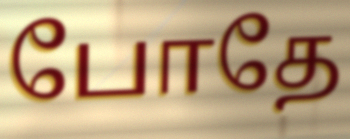
போதே